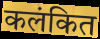
कलंकित